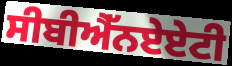
ਸੀਬੀਐੱਨਏਏਟੀ